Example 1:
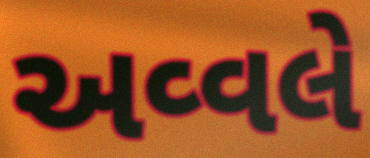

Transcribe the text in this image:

અવ્વલે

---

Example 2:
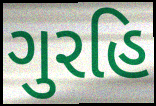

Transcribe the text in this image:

ગુરહિ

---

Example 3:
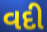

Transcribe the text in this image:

વદી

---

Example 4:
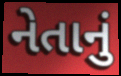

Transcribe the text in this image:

નેતાનું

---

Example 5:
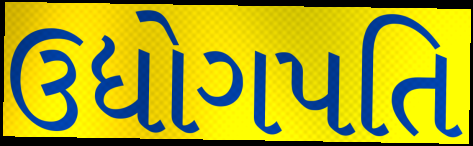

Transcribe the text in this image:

ઉદ્યોગપતિ